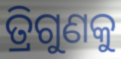
ତ୍ରିଗୁଣକୁ